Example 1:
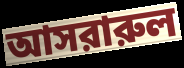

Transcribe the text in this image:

আসরারুল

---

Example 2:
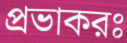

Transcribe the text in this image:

প্রভাকরঃ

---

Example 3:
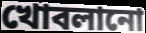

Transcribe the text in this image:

খোবলানো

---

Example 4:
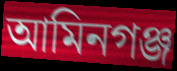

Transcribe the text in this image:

আমিনগঞ্জ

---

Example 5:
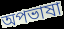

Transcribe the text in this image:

অপভাষা